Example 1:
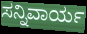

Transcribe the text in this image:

ಸನ್ನಿವಾರ್ಯ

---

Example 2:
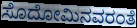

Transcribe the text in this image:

ಸೊದೋಮಿನವರಂತೆ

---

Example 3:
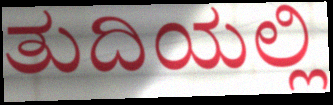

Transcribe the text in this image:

ತುದಿಯಲ್ಲಿ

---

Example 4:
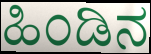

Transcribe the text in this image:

ಹಿಂಡಿನ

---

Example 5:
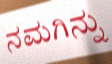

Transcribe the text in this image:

ನಮಗಿನ್ನು